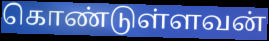
கொண்டுள்ளவன்